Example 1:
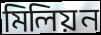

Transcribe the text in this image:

মিলিয়ন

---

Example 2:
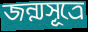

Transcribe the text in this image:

জন্মসূত্ৰে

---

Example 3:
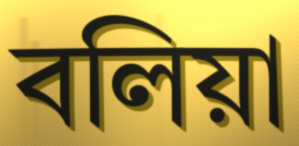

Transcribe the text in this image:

বলিয়া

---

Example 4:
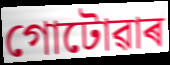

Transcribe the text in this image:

গোটোৱাৰ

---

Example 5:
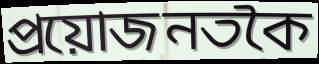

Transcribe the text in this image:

প্ৰয়োজনতকৈ